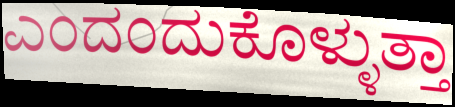
ಎಂದಂದುಕೊಳ್ಳುತ್ತಾ